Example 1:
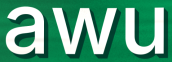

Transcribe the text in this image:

awu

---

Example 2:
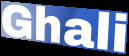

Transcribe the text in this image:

Ghali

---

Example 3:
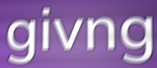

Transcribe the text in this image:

givng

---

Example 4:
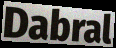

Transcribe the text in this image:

Dabral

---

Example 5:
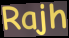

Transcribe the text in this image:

Rajh